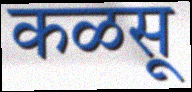
कळसू